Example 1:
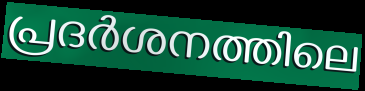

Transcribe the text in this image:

പ്രദർശനത്തിലെ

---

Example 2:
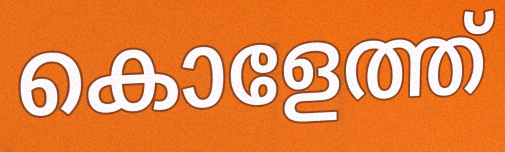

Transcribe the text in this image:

കൊളേത്ത്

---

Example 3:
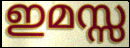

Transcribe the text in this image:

ഇമസ്സ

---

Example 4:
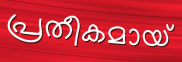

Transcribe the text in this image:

പ്രതീകമായ്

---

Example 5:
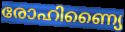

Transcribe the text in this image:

രോഹിണ്യൈ